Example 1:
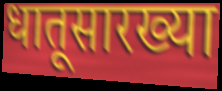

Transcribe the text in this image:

धातूसारख्या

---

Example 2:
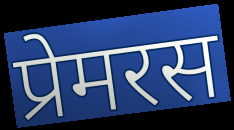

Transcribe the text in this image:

प्रेमरस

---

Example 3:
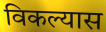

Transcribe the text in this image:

विकल्यास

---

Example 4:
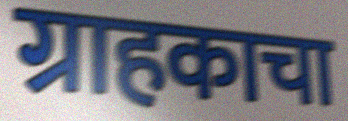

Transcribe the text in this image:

ग्राहकाचा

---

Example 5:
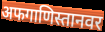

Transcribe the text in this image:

अफगाणिस्तानवर